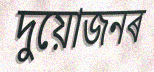
দুয়োজনৰ